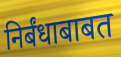
निर्बंधाबाबत